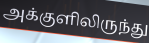
அக்குளிலிருந்து